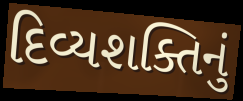
દિવ્યશક્તિનું